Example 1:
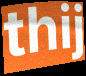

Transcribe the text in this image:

thij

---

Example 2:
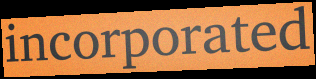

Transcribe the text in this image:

incorporated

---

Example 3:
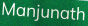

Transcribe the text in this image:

Manjunath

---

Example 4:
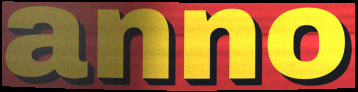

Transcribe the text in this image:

anno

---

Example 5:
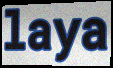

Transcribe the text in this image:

laya